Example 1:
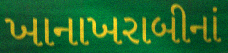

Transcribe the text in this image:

ખાનાખરાબીનાં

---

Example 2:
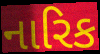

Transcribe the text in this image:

નારિક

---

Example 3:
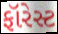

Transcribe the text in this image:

ફૉરેસ્ટ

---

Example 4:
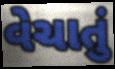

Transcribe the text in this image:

વેચાતું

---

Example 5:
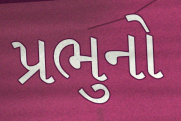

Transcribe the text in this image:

પ્રભુનો